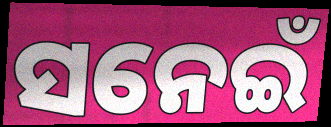
ସନେଇଁ